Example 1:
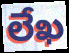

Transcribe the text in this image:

లేఖ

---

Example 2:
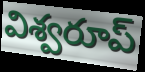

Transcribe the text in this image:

విశ్వరూప్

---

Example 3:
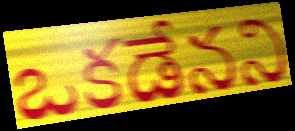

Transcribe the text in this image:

ఒకడేనని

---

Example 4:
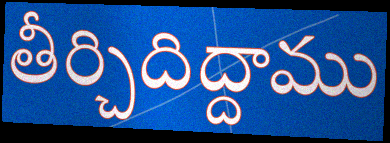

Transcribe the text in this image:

తీర్చిదిద్దాము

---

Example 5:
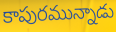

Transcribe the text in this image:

కాపురమున్నాడు